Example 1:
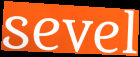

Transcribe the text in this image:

sevel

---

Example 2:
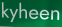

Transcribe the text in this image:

kyheen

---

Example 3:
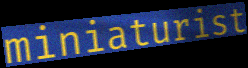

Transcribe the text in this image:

miniaturist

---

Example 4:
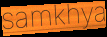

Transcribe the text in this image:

samkhya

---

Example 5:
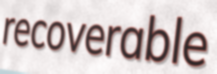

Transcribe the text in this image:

recoverable